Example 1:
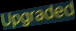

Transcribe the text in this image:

Upgraded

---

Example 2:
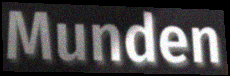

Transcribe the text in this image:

Munden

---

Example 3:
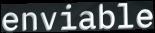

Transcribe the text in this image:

enviable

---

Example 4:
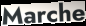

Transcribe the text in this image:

Marche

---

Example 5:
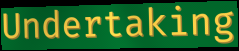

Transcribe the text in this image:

Undertaking